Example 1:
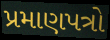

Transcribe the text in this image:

પ્રમાણપત્રો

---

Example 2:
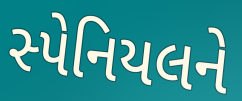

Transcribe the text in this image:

સ્પેનિયલને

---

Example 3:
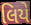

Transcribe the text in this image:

લિયે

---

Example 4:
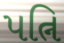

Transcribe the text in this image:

પત્નિ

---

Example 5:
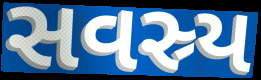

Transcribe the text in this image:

સવસ્ર્ય